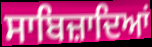
ਸਾਬਿਜ਼ਾਦਿਆਂ